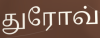
துரோவ்